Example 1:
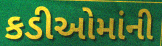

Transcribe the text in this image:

કડીઓમાંની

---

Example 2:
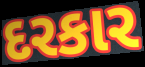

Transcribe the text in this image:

દરકાર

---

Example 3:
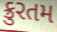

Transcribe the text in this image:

ક્રુરતમ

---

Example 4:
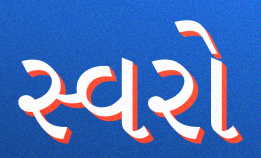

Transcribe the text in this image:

સ્વરો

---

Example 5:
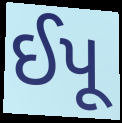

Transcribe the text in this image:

ઈપૂ